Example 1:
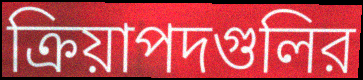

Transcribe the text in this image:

ক্রিয়াপদগুলির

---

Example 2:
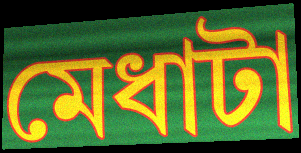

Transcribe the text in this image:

মেধাটা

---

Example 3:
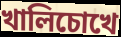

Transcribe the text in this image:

খালিচোখে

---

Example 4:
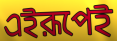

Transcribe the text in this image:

এইরূপেই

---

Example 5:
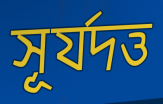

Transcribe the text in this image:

সূর্যদত্ত